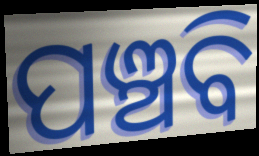
ପଞ୍ଚବି